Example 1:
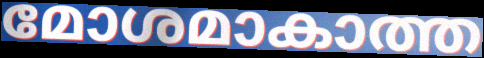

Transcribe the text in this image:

മോശമാകാത്ത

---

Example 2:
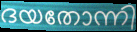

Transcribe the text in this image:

ദയതോന്നി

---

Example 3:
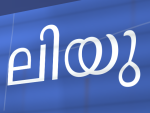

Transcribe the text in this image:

ലിയു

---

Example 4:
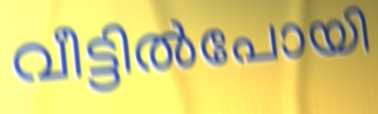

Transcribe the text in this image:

വീട്ടിൽപോയി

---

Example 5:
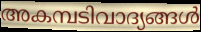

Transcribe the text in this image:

അകമ്പടിവാദ്യങ്ങൾ